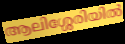
ആലിശ്ശേരിയിൽ